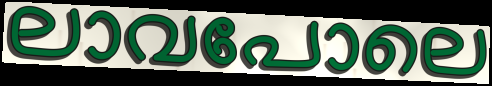
ലാവപോലെ